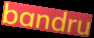
bandru